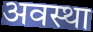
अवस्‍था